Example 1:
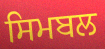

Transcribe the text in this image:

ਸਿਮਬਲ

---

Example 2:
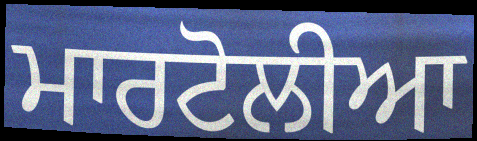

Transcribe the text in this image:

ਮਾਰਟੋਲੀਆ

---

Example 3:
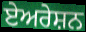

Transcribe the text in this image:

ਏਅਰੇਸ਼ਨ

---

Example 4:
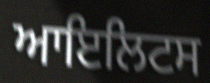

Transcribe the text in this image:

ਆਇਲਿਟਸ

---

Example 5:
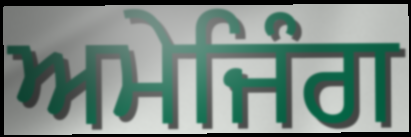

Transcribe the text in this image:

ਅਮੇਜਿੰਗ